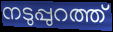
നടുപ്പുറത്ത്